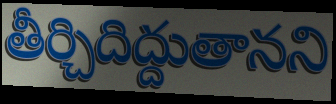
తీర్చిదిద్దుతానని